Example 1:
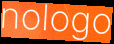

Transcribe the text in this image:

nologo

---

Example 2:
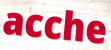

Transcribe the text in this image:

acche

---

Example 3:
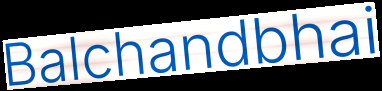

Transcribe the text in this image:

Balchandbhai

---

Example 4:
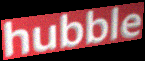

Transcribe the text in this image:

hubble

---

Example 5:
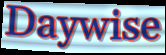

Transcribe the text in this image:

Daywise